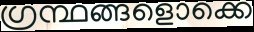
ഗ്രന്ഥങ്ങളൊക്കെ